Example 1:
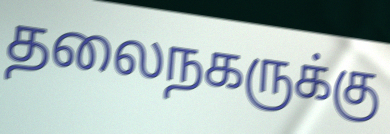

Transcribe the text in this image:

தலைநகருக்கு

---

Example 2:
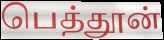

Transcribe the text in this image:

பெத்தூன்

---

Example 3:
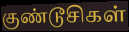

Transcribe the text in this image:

குண்டூசிகள்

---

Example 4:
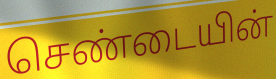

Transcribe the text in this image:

செண்டையின்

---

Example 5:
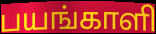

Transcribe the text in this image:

பயங்காளி